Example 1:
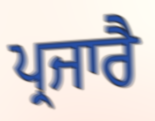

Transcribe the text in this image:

ਪ੍ਰਜਾਰੈ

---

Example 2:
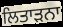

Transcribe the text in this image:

ਲਿਤਾੜਨਾ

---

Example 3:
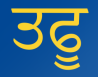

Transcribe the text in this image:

ਤਫੂ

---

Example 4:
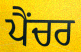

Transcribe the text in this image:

ਪੈਂਚਰ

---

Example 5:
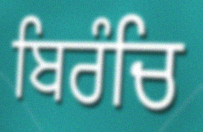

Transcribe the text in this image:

ਬਿਰੰਚਿ